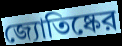
জ্যোতিষ্কের